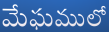
మేఘములో